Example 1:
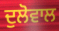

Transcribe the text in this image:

ਦੁਲੋਵਾਲ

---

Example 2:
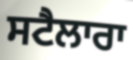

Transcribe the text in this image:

ਸਟੈਲਾਰਾ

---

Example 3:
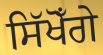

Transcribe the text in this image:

ਸਿੱਖੋਁਗੇ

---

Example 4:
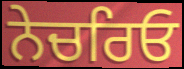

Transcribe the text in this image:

ਨੇਚਰਿਓ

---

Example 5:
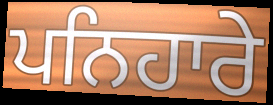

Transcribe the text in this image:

ਪਨਿਹਾਰੇ